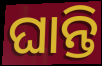
ଘାନ୍ତି